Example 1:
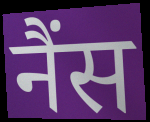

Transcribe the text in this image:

नैंस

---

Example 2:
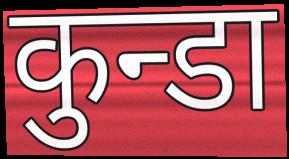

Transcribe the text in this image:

कुन्डा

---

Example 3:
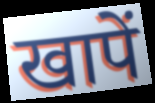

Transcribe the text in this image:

खापें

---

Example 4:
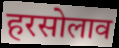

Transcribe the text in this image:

हरसोलाव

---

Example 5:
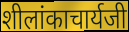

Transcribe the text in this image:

शीलांकाचार्यजी